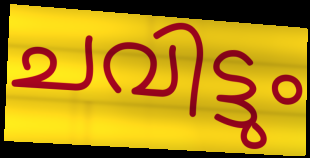
ചവിട്ടും